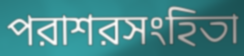
পরাশরসংহিতা